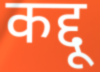
कद्दू